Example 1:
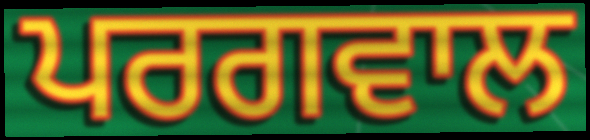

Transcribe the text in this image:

ਪਰਗਵਾਲ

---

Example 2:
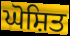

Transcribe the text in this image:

ਘੋਸ਼ਿਤ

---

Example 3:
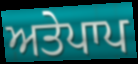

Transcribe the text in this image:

ਅਤੇਪਾਪ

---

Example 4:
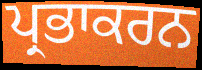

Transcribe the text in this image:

ਪ੍ਰਭਾਕਰਨ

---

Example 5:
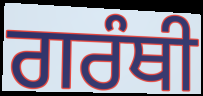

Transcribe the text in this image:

ਗਰੰਥੀ